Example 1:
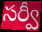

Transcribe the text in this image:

సర్వీ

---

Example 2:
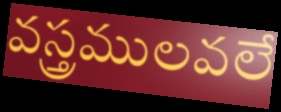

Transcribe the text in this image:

వస్త్రములవలే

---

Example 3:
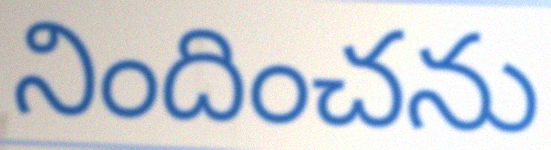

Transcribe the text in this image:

నిందించను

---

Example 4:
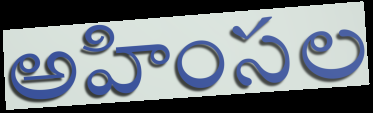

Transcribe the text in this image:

అహింసల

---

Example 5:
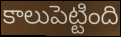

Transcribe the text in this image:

కాలుపెట్టింది